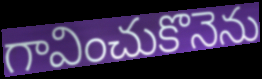
గావించుకొనెను